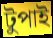
টুপাই